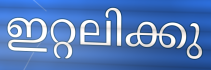
ഇറ്റലിക്കു